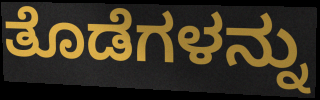
ತೊಡೆಗಳನ್ನು